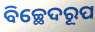
ବିଚ୍ଛେଦରୂପ